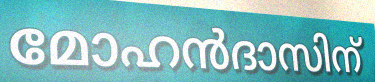
മോഹൻദാസിന്